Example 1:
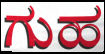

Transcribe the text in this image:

ಗುಹ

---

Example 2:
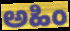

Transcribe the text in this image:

ಅಹಿಂ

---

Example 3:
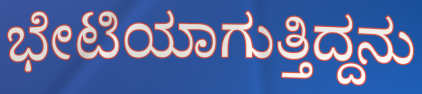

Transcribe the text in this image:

ಭೇಟಿಯಾಗುತ್ತಿದ್ದನು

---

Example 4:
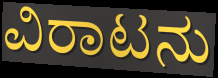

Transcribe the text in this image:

ವಿರಾಟನು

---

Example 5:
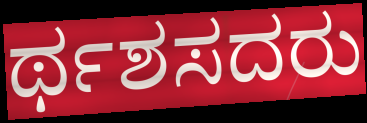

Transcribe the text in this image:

ರ್ಥಶಸದರು